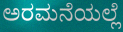
ಅರಮನೆಯಲ್ಲೆ